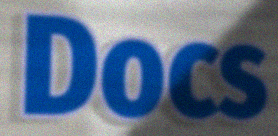
Docs